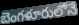
బెంగళూరులోనే